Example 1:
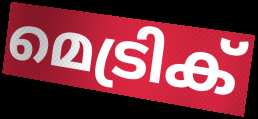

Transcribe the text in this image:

മെട്രിക്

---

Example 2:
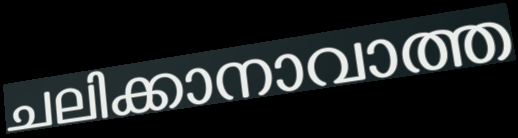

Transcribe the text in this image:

ചലിക്കാനാവാത്ത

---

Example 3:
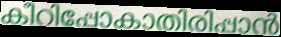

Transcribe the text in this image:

കീറിപ്പോകാതിരിപ്പാൻ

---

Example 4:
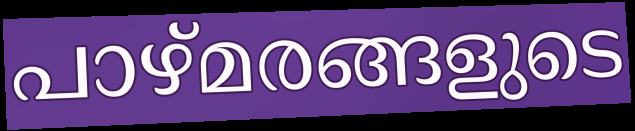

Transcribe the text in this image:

പാഴ്മരങ്ങളുടെ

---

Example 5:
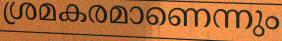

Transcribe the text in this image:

ശ്രമകരമാണെന്നും